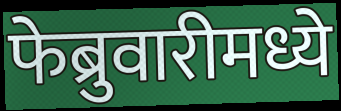
फेब्रुवारीमध्ये